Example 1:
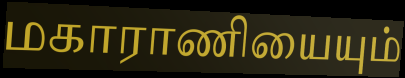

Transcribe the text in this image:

மகாராணியையும்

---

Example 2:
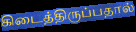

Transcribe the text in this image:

கிடைத்திருப்பதால்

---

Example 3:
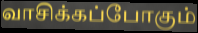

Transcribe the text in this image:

வாசிக்கப்போகும்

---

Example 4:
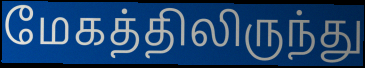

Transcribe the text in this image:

மேகத்திலிருந்து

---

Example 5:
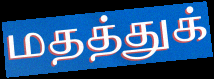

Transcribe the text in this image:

மதத்துக்